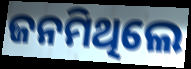
ଜନମିଥିଲେ